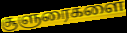
சூளுரைகளை